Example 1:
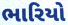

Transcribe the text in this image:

ભારિયો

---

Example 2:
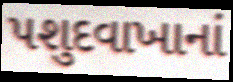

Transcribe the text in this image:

પશુદવાખાનાં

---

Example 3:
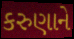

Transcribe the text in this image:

કરુણાને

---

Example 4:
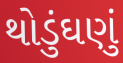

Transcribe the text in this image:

થોડુંઘણું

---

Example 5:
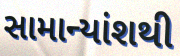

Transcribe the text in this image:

સામાન્યાંશથી